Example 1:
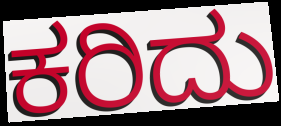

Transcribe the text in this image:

ಕರಿದು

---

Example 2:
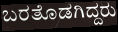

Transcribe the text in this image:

ಬರತೊಡಗಿದ್ದರು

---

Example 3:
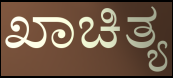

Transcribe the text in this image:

ಖಾಚಿತ್ಯ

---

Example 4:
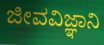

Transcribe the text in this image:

ಜೀವವಿಜ್ಞಾನಿ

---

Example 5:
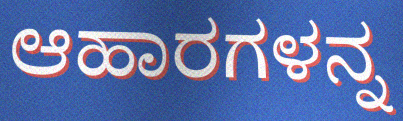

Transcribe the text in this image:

ಆಹಾರಗಳನ್ನ